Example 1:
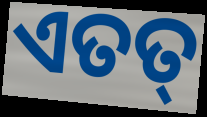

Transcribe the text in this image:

ଏତତ୍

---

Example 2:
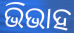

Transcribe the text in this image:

ଭିଭାହ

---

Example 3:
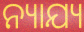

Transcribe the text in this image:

ନ୍ୟାଯ୍ୟ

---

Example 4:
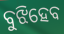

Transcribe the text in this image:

ବୁଝିହେବ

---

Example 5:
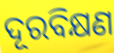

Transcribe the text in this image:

ଦୂରବିକ୍ଷଣ